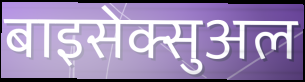
बाइसेक्सुअल